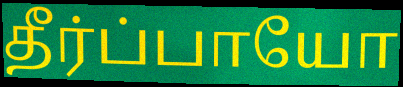
தீர்ப்பாயோ